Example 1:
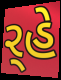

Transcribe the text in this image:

ર્‍હે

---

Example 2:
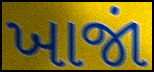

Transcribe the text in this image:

ખાજાં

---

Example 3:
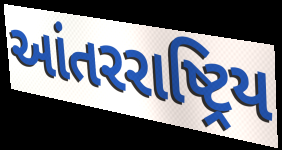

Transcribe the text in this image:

આંતરરાષ્ટ્રિય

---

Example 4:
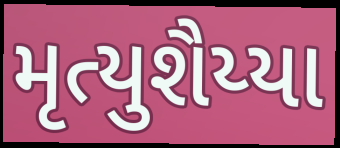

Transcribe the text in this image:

મૃત્યુશૈય્યા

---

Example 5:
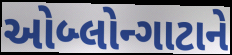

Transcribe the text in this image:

ઓબ્લોન્ગાટાને